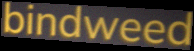
bindweed